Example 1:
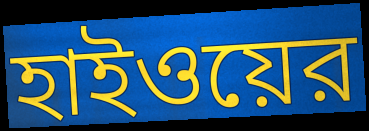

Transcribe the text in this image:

হাইওয়ের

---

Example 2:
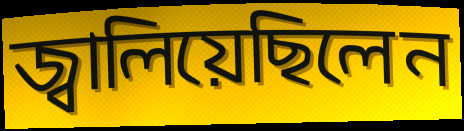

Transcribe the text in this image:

জ্বালিয়েছিলেন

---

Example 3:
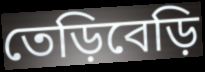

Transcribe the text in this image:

তেড়িবেড়ি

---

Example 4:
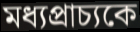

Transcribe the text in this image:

মধ্যপ্রাচ্যকে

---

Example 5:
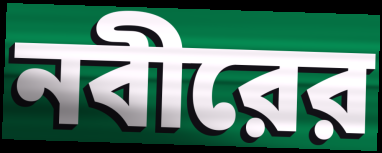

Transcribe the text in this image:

নবীরের